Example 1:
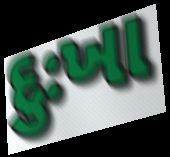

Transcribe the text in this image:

દુઃખા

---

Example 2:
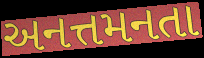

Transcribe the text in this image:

અનત્તમનતા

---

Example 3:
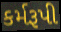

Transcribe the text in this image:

કર્મરૂપી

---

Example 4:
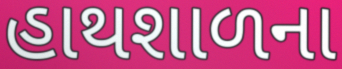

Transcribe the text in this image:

હાથશાળના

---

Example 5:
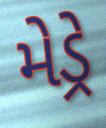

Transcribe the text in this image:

મેડ્રે